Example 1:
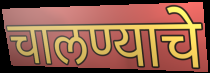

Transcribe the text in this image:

चालण्याचे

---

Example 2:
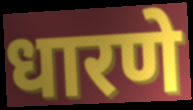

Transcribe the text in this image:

धारणे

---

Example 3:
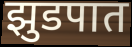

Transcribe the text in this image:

झुडपात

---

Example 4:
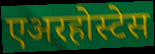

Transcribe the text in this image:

एअरहोस्टेस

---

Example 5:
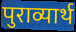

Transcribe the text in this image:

पुराव्यार्थ